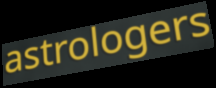
astrologers